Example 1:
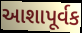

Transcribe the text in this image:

આશાપૂર્વક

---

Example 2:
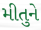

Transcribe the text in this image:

મીતુને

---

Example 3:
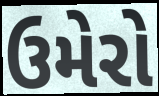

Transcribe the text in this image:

ઉમેરો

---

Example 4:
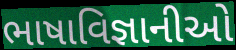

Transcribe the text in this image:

ભાષાવિજ્ઞાનીઓ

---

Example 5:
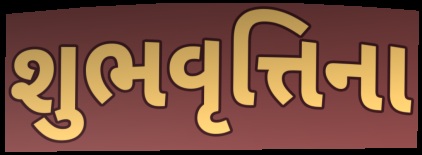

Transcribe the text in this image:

શુભવૃત્તિના